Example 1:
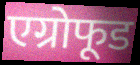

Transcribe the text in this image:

एग्रोफूड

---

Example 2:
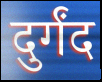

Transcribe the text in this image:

दुर्गंद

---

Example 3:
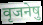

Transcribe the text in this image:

वृजनेषु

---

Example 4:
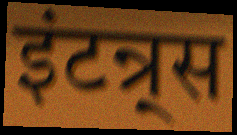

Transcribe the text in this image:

इंटन्र्स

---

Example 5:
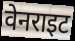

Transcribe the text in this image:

वेनराइट